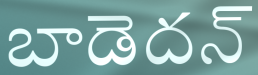
బాడెదన్